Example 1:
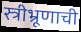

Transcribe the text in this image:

स्त्रीभ्रूणाची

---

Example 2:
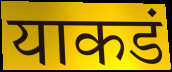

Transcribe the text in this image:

याकडं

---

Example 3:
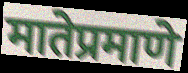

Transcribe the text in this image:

मातेप्रमाणे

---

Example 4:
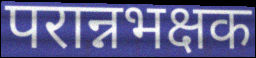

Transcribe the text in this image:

परान्नभक्षक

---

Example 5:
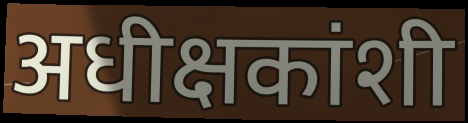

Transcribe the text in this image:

अधीक्षकांशी